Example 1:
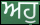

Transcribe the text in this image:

ਅਹੁ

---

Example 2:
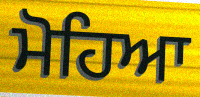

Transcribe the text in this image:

ਮੋਹਿਆ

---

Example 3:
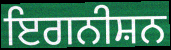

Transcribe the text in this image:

ਇਗਨੀਸ਼ਨ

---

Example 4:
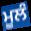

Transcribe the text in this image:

ਮੂਲੰ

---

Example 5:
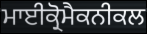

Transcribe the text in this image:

ਮਾਈਕ੍ਰੋਮੈਕਨੀਕਲ